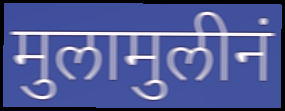
मुलामुलीनं